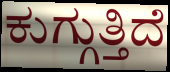
ಕುಗ್ಗುತ್ತಿದೆ